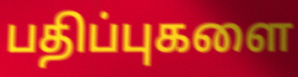
பதிப்புகளை